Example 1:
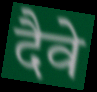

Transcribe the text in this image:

दैवे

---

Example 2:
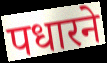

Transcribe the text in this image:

पधारने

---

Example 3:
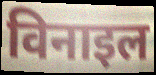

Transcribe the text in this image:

विनाइल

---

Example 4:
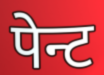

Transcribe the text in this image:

पेन्ट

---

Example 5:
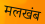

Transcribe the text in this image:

मलखंब